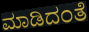
ಮಾಡಿದಂತೆ